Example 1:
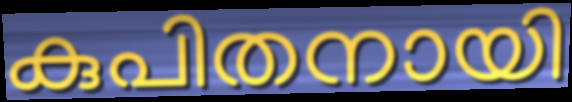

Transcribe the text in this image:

കുപിതനായി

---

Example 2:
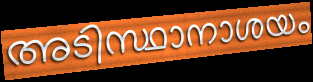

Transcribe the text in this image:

അടിസ്ഥാനാശയം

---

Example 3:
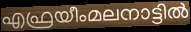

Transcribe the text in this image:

എഫ്രയീംമലനാട്ടിൽ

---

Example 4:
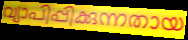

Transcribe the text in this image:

വ്യാപിപ്പിക്കുന്നതായ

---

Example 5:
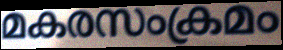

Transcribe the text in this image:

മകരസംക്രമം